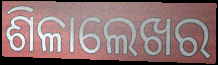
ଶିଳାଲେଖର